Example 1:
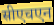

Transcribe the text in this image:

सीएचएन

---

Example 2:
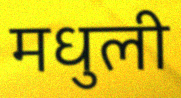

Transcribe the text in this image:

मधुली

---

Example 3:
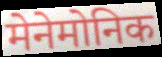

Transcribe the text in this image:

मेनेमोनिक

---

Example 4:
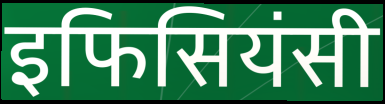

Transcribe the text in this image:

इफिसियंसी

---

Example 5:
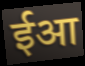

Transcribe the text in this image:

ईआ